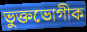
ভুক্তভোগীক